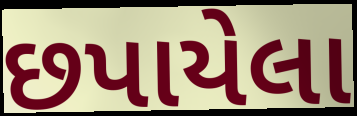
છપાયેલા